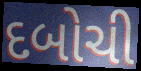
દબોચી